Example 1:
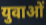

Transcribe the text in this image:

युवाओं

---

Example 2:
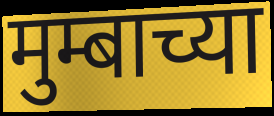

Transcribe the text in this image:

मुम्बाच्या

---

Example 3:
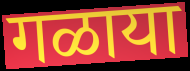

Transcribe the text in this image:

गळाया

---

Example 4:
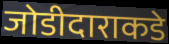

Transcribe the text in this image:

जोडीदाराकडे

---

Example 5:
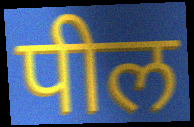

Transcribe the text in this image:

पील